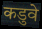
कडुवे